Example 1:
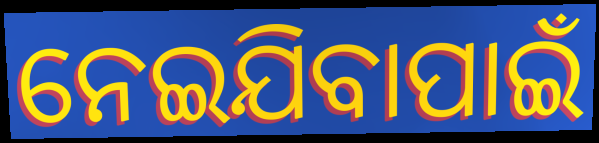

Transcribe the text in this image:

ନେଇଯିବାପାଇଁ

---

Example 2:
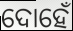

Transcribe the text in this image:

ଦୋହେଁ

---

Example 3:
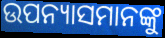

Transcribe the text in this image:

ଉପନ୍ୟାସମାନଙ୍କୁ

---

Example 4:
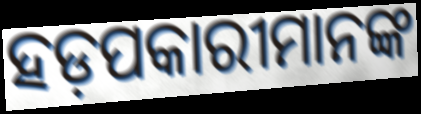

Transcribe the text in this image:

ହଡ଼ପକାରୀମାନଙ୍କ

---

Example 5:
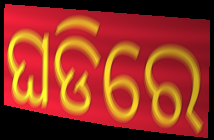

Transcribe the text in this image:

ଘଡିରେ